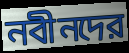
নবীনদের